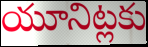
యూనిట్లకు